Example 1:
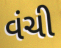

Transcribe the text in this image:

વંચી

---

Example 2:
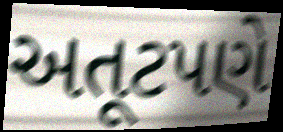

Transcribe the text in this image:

અતૂટપણે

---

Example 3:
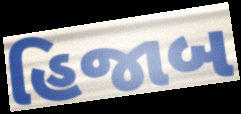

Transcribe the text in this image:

હિજાબ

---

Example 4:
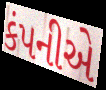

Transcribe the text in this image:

કંપનીએ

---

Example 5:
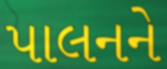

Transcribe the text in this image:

પાલનને